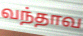
வந்தாவ